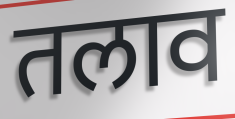
तलाव